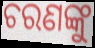
ଚରଣଙ୍କୁ